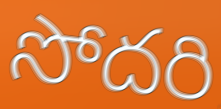
సోదరి